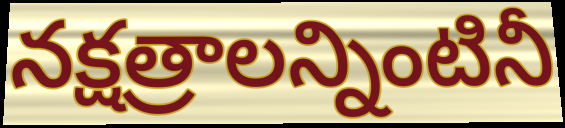
నక్షత్రాలన్నింటినీ